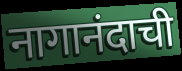
नागानंदाची